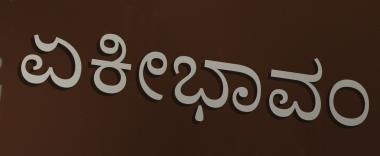
ಏಕೀಭಾವಂ